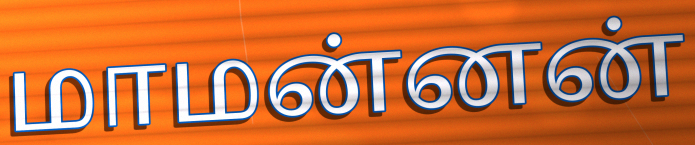
மாமன்னன்